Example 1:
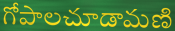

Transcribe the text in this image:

గోపాలచూడామణి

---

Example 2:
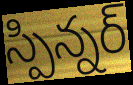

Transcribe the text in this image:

స్పిన్నర్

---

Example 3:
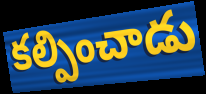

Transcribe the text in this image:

కల్పించాడు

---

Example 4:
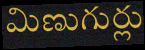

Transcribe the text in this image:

మిణుగుర్లు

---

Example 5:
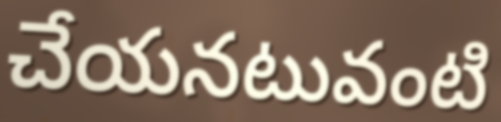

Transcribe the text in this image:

చేయనటువంటి